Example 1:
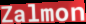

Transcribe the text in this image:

Zalmon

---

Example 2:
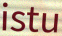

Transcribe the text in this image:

istu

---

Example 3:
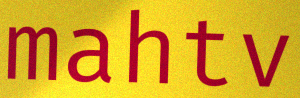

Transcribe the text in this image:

mahtv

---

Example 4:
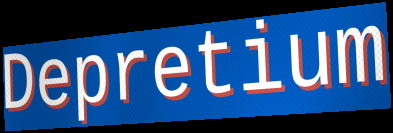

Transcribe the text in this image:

Depretium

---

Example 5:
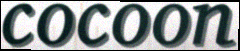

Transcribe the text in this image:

cocoon